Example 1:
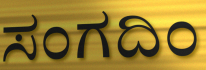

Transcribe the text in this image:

ಸಂಗದಿಂ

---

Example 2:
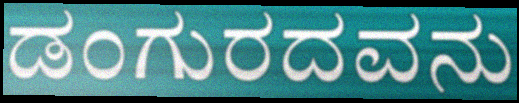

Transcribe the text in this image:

ಡಂಗುರದವನು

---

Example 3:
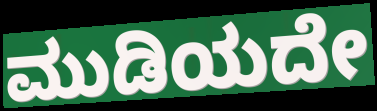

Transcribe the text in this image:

ಮುಡಿಯದೇ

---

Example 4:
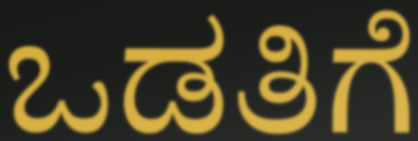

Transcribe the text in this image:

ಒಡತಿಗೆ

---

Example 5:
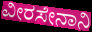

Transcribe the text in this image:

ವೀರಸೇನಾನಿ